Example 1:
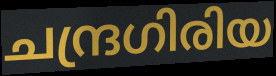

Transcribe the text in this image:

ചന്ദ്രഗിരിയ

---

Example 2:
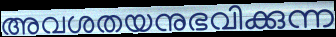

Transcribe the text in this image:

അവശതയനുഭവിക്കുന്ന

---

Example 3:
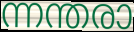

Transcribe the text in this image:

ന്നന്തരാ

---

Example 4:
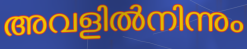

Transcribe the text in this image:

അവളിൽനിന്നും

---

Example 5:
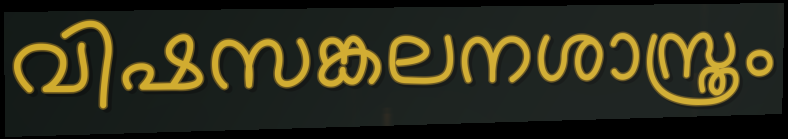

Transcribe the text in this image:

വിഷസങ്കലനശാസ്ത്രം